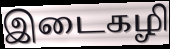
இடைகழி